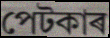
পেটকাৰ